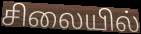
சிலையில்